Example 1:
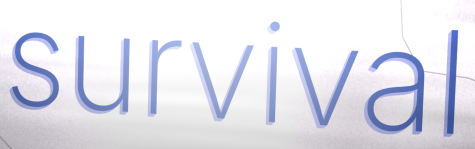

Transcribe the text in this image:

survival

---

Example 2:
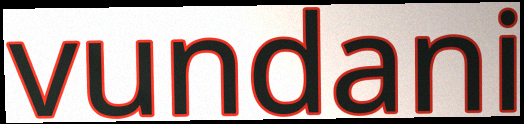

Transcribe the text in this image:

vundani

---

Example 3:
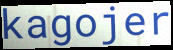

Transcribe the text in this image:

kagojer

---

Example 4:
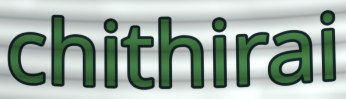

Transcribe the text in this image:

chithirai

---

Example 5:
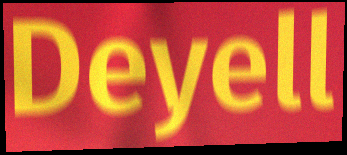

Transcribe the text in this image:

Deyell